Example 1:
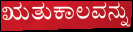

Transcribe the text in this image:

ಋತುಕಾಲವನ್ನು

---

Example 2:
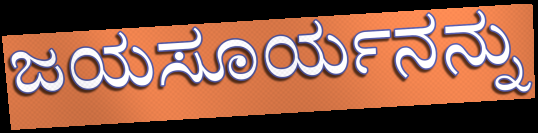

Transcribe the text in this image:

ಜಯಸೂರ್ಯನನ್ನು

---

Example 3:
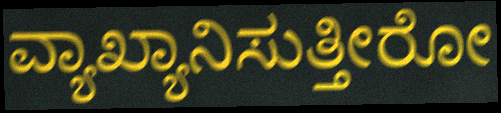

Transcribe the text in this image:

ವ್ಯಾಖ್ಯಾನಿಸುತ್ತೀರೋ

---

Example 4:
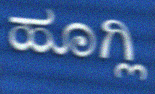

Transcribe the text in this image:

ಹೂಗ್ಲಿ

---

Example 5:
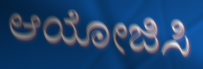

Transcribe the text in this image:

ಆಯೋಜಿಸಿ